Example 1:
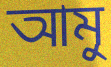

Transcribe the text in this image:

আমু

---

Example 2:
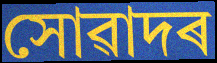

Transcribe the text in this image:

সোৱাদৰ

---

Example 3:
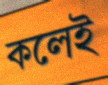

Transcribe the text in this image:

কলেই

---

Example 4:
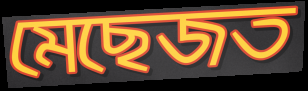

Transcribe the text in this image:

মেছেজত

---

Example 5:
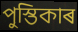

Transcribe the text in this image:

পুস্তিকাৰ